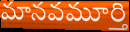
మానవమూర్తి